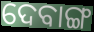
ଦେବାଙ୍ଗ